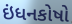
ઇંધનકોષો